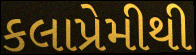
કલાપ્રેમીથી